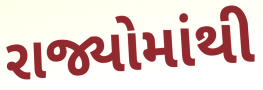
રાજ્યોમાંથી